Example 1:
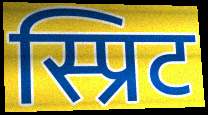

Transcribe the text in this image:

स्प्रिट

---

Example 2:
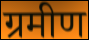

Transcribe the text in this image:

ग्रमीण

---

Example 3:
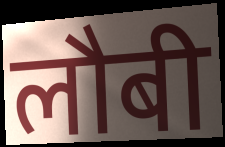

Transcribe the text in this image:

लौबी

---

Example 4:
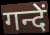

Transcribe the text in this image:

गन्दें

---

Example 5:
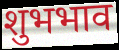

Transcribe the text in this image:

शुभभाव